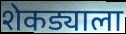
शेकड्याला